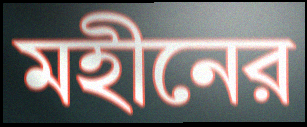
মহীনের